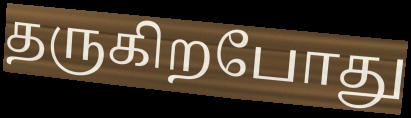
தருகிறபோது